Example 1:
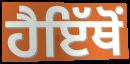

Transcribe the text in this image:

ਹੈਇੱਥੋਂ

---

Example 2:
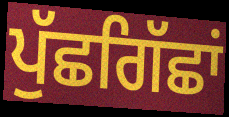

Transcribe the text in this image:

ਪੁੱਛਗਿੱਛਾਂ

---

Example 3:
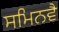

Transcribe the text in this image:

ਸਮਿਨਵੈ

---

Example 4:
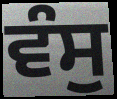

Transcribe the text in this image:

ਵੰਸੁ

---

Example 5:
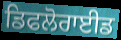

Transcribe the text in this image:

ਡਿਫਲੋਰਾਈਡ